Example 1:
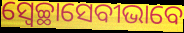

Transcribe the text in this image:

ସ୍ୱେଚ୍ଛାସେବୀଭାବେ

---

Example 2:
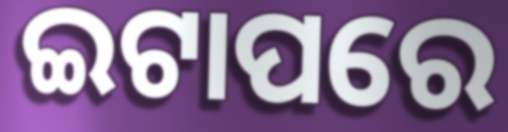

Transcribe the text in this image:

ଇଟାପରେ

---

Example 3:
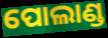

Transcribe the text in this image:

ପୋଲାଣ୍ଡ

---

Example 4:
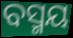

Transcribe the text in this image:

ବସ୍ମୟ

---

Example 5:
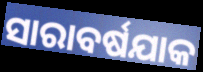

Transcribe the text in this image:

ସାରାବର୍ଷଯାକ